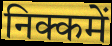
निक्कमें